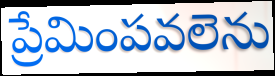
ప్రేమింపవలెను